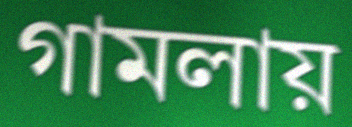
গামলায়